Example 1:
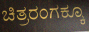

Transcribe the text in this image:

ಚಿತ್ರರಂಗಕ್ಕೂ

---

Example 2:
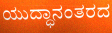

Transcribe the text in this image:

ಯುದ್ಧಾನಂತರದ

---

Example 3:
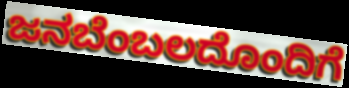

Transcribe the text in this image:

ಜನಬೆಂಬಲದೊಂದಿಗೆ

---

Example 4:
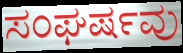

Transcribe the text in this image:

ಸಂಘರ್ಷವು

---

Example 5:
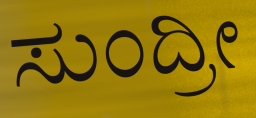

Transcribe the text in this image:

ಸುಂದ್ರೀ